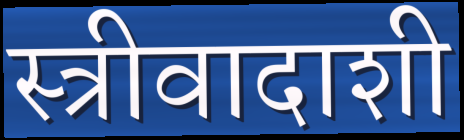
स्त्रीवादाशी